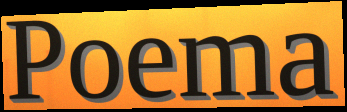
Poema